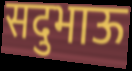
सदुभाऊ